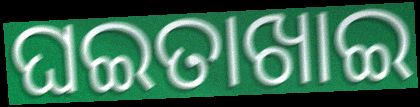
ଘଇତାଖାଇ